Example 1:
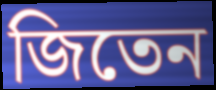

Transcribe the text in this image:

জিতেন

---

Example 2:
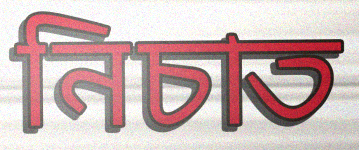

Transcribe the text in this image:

নিচাত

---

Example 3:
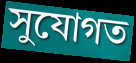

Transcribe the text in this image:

সুযোগত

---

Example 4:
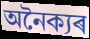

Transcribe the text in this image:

অনৈক্যৰ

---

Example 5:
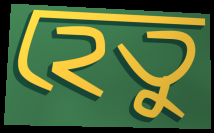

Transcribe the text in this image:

হেতু